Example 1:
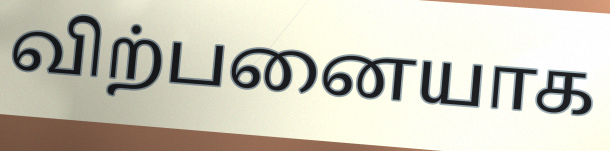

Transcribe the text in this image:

விற்பனையாக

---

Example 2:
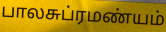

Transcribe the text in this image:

பாலசுப்ரமண்யம்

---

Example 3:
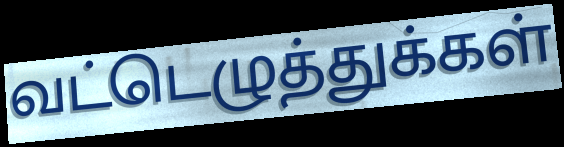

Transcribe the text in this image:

வட்டெழுத்துக்கள்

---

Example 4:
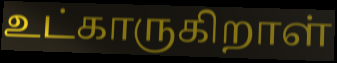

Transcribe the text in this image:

உட்காருகிறாள்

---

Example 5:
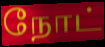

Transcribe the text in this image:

நோட்